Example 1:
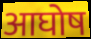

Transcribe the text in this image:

आघोष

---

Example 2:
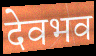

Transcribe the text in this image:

देवभव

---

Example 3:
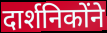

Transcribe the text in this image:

दार्शनिकोंने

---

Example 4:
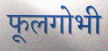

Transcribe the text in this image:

फूलगोभी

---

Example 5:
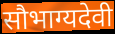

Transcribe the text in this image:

सौभाग्यदेवी